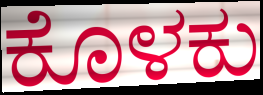
ಕೊಳಕು